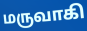
மருவாகி